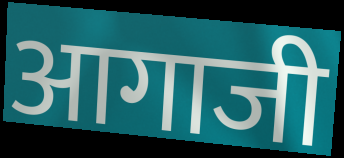
आगाजी